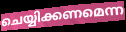
ചെയ്യിക്കണമെന്ന